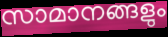
സാമാനങ്ങളും